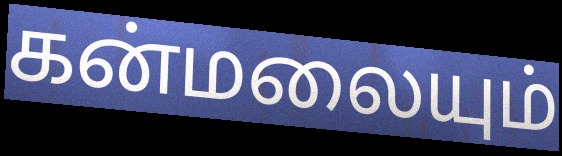
கன்மலையும்